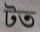
টত